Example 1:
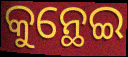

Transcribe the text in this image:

କୁନ୍ଥେଇ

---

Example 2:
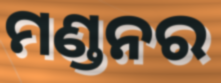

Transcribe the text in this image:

ମଣ୍ଡନର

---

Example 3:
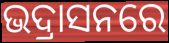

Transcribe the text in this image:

ଭଦ୍ରାସନରେ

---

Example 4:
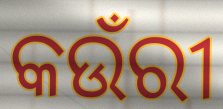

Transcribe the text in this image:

କଉଁରୀ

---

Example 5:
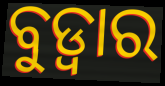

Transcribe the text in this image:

ବୁଡ୍ୱାର